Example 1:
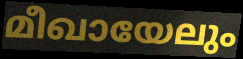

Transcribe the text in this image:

മീഖായേലും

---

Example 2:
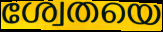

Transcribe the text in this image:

ശ്വേതയെ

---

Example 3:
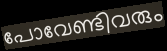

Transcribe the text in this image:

പോവേണ്ടിവരും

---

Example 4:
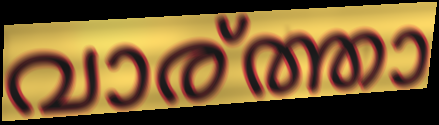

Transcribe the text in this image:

വാര്ത്താ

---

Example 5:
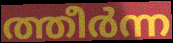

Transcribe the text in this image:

ത്തീർന്ന